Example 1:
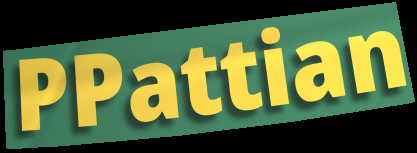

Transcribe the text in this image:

PPattian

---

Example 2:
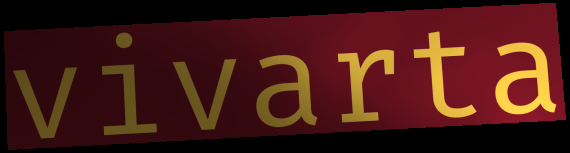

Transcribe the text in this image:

vivarta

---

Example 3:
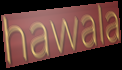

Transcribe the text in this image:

hawala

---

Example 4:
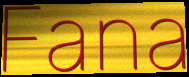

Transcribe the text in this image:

Fana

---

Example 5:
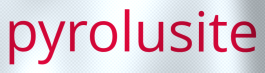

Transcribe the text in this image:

pyrolusite